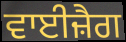
ਵਾਈਜ਼ੈਗ